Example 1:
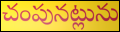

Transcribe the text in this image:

చంపునట్లును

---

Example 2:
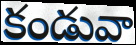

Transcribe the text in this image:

కండువా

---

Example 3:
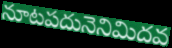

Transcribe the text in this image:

నూటపదునెనిమిదవ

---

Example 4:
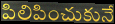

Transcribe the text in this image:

పిలిపించుకునే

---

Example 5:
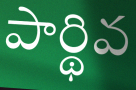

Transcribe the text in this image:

పార్థివ